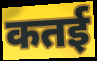
कतई